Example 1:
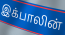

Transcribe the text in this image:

இக்பாலின்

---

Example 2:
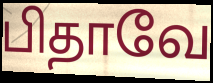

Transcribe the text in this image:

பிதாவே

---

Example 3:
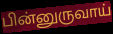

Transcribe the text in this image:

பின்னுருவாய்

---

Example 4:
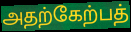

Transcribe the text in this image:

அதற்கேற்பத்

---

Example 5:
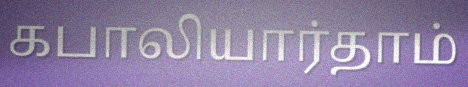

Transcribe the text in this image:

கபாலியார்தாம்